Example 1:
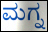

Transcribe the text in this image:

ಮಗ್ನ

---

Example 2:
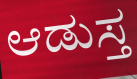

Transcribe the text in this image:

ಆಡುಸ್ತ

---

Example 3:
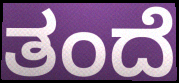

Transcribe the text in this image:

ತಂದೆ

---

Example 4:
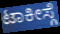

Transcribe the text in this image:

ಟಾಕೀಸ್ಗೆ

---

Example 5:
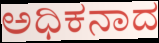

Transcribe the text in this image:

ಅಧಿಕನಾದ